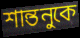
শান্তনুকে